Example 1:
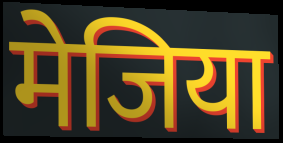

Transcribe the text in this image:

मेजिया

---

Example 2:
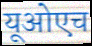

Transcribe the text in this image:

यूओएच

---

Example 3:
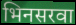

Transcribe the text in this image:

भिनसरवा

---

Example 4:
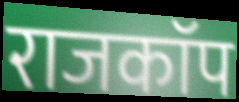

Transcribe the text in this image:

राजकॉप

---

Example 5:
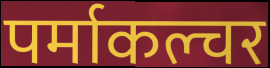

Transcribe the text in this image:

पर्माकल्चर